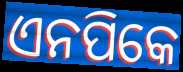
ଏନପିକେ